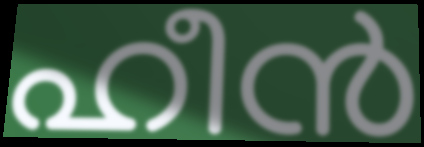
ഹീൻ